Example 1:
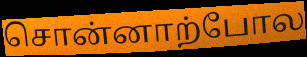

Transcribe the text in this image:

சொன்னாற்போல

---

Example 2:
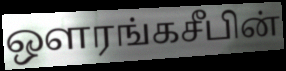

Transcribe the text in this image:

ஔரங்கசீபின்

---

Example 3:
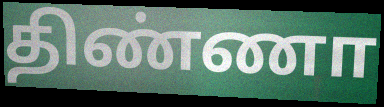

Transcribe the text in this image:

திண்ணா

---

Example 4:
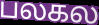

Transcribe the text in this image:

பலகல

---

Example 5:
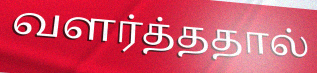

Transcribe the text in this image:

வளர்த்ததால்